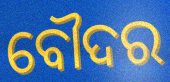
ବୌଦର